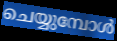
ചെയ്യുമ്പോൾ